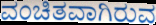
ವಂಚಿತವಾಗಿರುವ